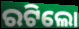
ରଟିଲୋ